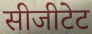
सीजीटेट